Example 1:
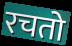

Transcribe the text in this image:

रचतो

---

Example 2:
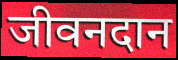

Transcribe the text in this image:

जीवनदान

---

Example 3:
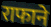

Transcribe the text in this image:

राफाने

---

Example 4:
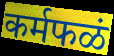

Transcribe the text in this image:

कर्मफळं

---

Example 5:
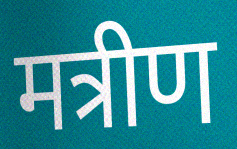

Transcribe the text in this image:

मत्रीण